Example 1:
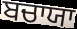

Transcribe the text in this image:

ਬਚਾਯਾ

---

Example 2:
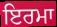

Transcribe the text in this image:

ਇਰਮਾ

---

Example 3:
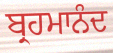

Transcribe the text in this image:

ਬ੍ਰਹਮਾਨੰਦ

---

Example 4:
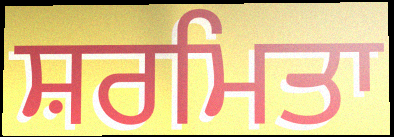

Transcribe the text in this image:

ਸ਼ਰਮਿਤਾ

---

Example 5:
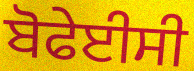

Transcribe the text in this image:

ਬੋਫੇਈਸੀ